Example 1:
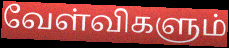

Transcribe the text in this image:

வேள்விகளும்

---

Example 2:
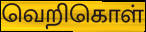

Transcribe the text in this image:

வெறிகொள்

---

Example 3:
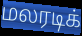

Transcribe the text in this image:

மலரடிக்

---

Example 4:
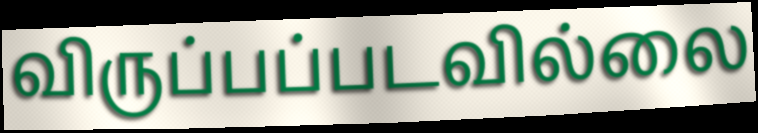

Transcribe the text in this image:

விருப்பப்படவில்லை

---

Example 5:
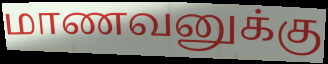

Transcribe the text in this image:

மாணவனுக்கு